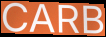
CARB